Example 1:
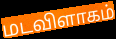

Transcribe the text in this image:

மடவிளாகம்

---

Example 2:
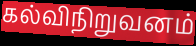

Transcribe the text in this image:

கல்விநிறுவனம்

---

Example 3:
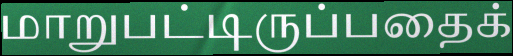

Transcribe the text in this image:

மாறுபட்டிருப்பதைக்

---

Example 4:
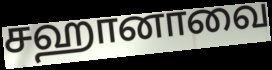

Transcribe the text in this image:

சஹானாவை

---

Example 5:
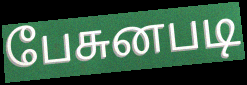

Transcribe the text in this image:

பேசுனபடி